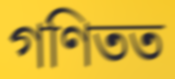
গণিতত